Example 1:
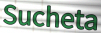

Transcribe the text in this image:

Sucheta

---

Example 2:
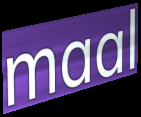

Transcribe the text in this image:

maal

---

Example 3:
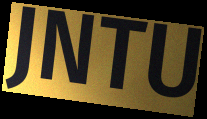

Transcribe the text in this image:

JNTU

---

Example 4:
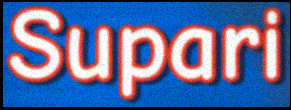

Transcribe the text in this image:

Supari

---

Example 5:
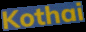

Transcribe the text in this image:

Kothai